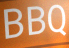
BBQ